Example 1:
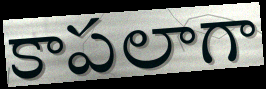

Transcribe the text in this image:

కాపలాగా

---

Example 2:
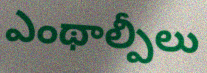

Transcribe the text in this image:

ఎంథాల్పీలు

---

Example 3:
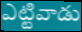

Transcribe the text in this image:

ఎట్టివాడు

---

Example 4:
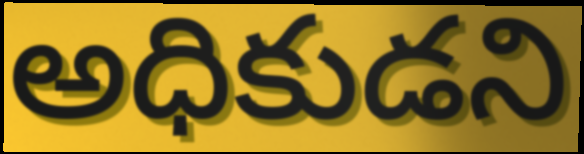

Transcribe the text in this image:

అధికుడని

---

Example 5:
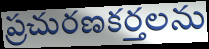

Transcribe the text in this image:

ప్రచురణకర్తలను